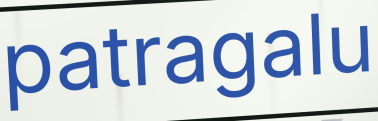
patragalu